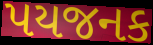
પયજનક